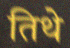
तिथे